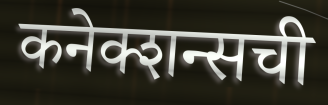
कनेक्शन्सची